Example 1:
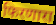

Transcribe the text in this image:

फिरणारा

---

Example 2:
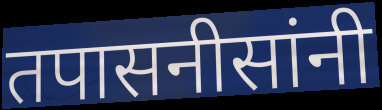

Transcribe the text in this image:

तपासनीसांनी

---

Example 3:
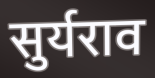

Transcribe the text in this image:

सुर्यराव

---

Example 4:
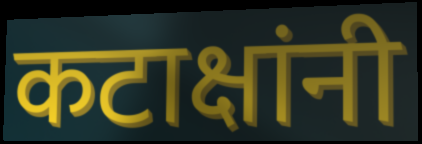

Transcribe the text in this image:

कटाक्षांनी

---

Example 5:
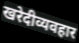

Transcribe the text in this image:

खरेदीव्यवहार